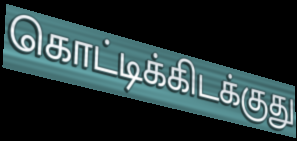
கொட்டிக்கிடக்குது